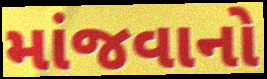
માંજવાનો